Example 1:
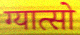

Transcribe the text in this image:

ग्यात्सो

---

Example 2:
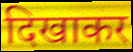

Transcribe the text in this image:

दिखाकर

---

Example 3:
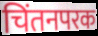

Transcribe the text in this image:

चिंतनपरक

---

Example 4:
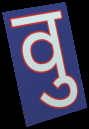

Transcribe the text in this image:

वु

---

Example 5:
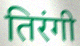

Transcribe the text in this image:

तिरंगी